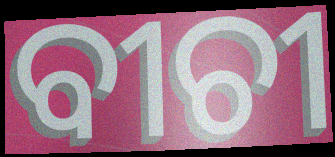
ବୀଚୀ